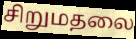
சிறுமதலை